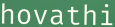
hovathi